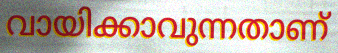
വായിക്കാവുന്നതാണ്